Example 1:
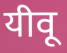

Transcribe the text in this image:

यीवू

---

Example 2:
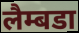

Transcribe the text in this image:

लैम्बडा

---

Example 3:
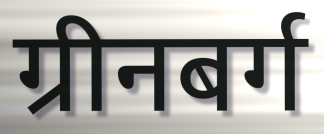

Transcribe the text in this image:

ग्रीनबर्ग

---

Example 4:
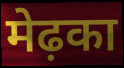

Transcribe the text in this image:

मेढ़का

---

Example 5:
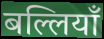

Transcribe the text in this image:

बल्लियाँ